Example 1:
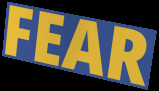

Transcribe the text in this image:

FEAR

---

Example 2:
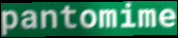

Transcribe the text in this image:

pantomime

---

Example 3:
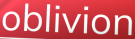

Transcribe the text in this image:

oblivion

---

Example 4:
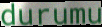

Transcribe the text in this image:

durumu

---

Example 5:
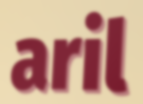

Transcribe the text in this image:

aril